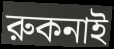
রুকনাই